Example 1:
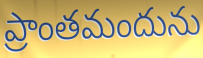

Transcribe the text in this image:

ప్రాంతమందును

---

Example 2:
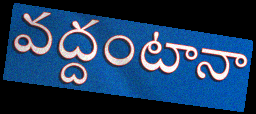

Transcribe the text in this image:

వద్దంటానా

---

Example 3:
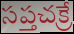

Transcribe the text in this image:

సప్తచక్రే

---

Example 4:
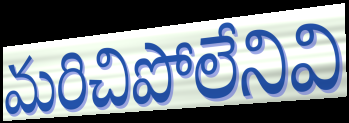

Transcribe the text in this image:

మరిచిపోలేనివి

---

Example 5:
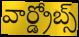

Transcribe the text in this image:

వార్డ్రోబ్స్